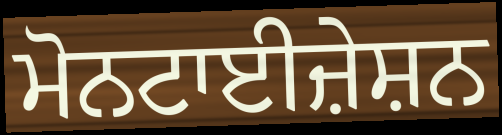
ਮੋਨਟਾਈਜ਼ੇਸ਼ਨ